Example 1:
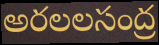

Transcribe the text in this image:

అరలలసంద్ర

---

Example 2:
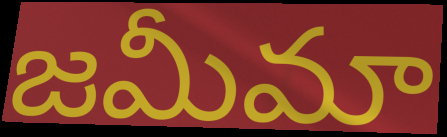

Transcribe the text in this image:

జమీమా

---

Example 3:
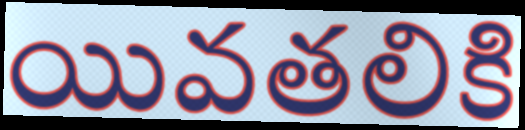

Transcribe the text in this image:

యివతలికి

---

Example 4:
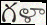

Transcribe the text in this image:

గళా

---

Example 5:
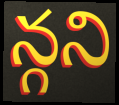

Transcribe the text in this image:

న్గని